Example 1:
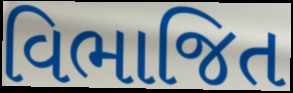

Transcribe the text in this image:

વિભાજિત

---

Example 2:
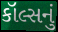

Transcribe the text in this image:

કૉલ્સનું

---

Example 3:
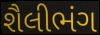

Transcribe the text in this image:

શૈલીભંગ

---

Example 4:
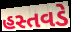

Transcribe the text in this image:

હસ્તવડે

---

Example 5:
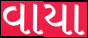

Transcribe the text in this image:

વાયા